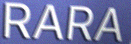
RARA